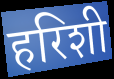
हरिशी